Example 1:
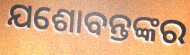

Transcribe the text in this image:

ଯଶୋବନ୍ତଙ୍କର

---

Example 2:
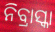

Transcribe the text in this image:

ନିବ୍ରାସ୍କା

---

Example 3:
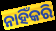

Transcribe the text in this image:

ନାହିଁକରି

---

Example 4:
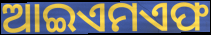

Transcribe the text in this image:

ଆଇଏମଏଫ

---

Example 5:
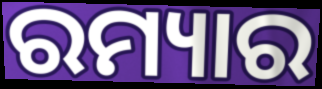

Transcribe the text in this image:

ରମ୍ୟାର